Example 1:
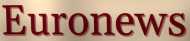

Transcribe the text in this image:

Euronews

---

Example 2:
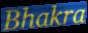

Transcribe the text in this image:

Bhakra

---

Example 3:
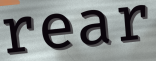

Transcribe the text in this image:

rear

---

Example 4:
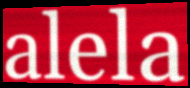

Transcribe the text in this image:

alela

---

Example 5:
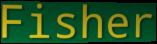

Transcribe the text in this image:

Fisher